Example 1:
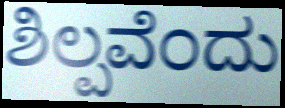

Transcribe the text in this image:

ಶಿಲ್ಪವೆಂದು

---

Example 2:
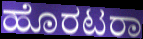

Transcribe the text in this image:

ಹೊರಟರಾ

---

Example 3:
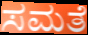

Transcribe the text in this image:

ಸಮತೆ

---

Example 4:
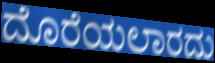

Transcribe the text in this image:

ದೊರೆಯಲಾರದು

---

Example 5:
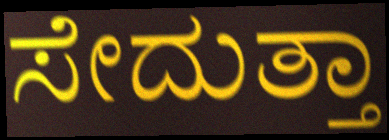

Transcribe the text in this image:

ಸೇದುತ್ತಾ